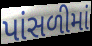
પાંસળીમાં